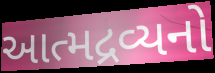
આત્મદ્રવ્યનો